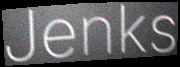
Jenks